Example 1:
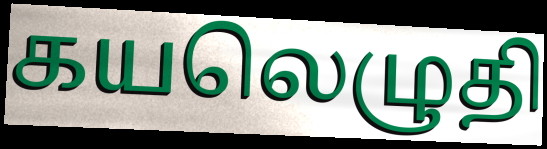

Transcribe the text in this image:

கயலெழுதி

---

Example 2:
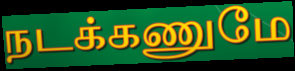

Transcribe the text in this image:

நடக்கணுமே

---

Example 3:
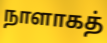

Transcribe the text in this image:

நாளாகத்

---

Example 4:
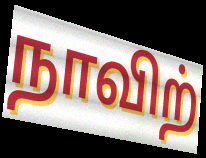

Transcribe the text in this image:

நாவிற்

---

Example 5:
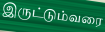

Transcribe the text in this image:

இருட்டும்வரை